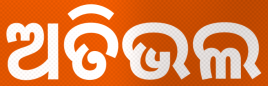
ଅତିଭଲ